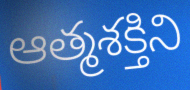
ఆత్మశక్తిని